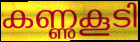
കണ്ണുകൂടി